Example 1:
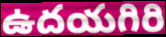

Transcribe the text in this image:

ఉదయగిరి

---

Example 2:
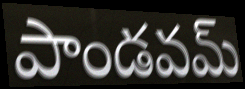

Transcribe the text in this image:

పాండవమ్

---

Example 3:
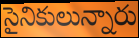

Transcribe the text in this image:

సైనికులున్నారు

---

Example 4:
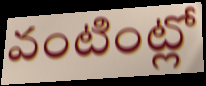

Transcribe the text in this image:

వంటింట్లో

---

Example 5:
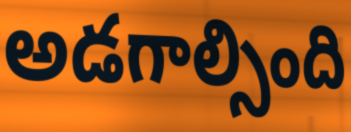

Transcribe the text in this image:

అడగాల్సింది